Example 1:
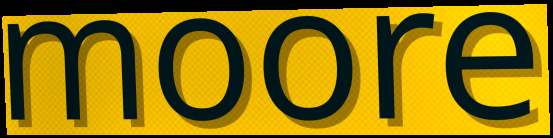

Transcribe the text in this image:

moore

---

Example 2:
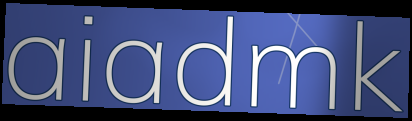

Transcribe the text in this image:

aiadmk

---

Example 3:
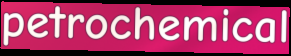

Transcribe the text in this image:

petrochemical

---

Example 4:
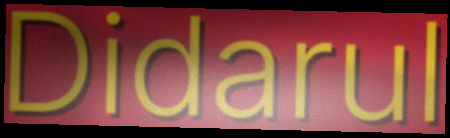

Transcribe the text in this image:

Didarul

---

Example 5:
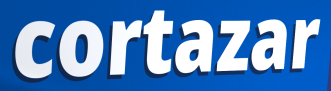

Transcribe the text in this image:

cortazar